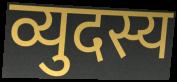
व्युदस्य